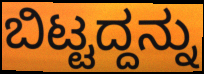
ಬಿಟ್ಟದ್ದನ್ನು